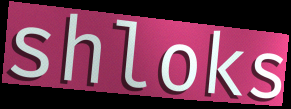
shloks